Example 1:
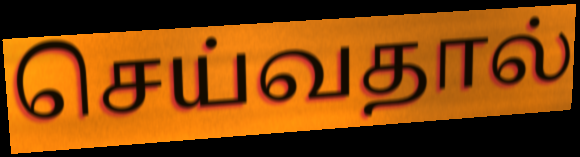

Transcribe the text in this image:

செய்வதால்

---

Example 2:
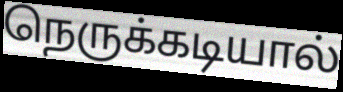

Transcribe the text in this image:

நெருக்கடியால்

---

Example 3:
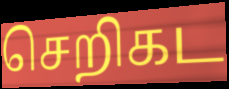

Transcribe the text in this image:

செறிகட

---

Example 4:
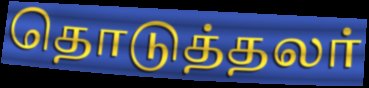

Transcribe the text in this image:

தொடுத்தலர்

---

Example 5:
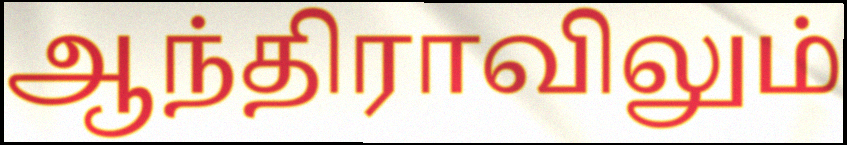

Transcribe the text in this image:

ஆந்திராவிலும்